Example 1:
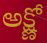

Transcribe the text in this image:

అక్ష్ణో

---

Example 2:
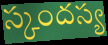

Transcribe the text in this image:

స్కందస్య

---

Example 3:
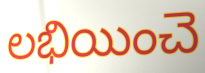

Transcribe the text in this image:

లభియించె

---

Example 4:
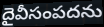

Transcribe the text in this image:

దైవీసంపదను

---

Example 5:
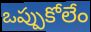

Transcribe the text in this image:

ఒప్పుకోలేం